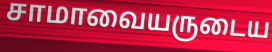
சாமாவையருடைய